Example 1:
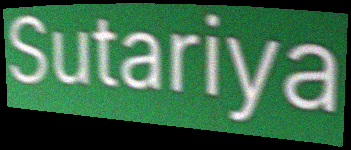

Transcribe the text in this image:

Sutariya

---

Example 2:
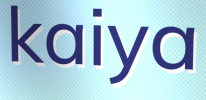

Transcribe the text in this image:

kaiya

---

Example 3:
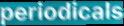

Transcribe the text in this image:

periodicals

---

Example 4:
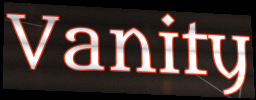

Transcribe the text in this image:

Vanity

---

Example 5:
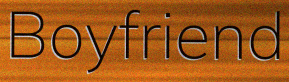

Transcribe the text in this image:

Boyfriend